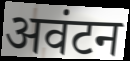
अवंटन